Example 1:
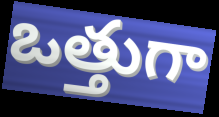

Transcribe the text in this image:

ఒత్తుగా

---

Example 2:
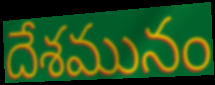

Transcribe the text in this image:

దేశమునం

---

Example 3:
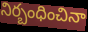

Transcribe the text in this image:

నిర్బంధించినా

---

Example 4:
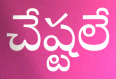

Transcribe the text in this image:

చేష్టలే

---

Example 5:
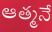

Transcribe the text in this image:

ఆత్మనే